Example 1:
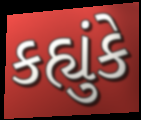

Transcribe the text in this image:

કહ્યુંકે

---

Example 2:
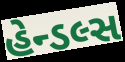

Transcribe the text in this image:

હેન્ડલ્સ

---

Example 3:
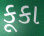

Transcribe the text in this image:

કૂકા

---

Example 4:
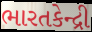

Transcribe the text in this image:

ભારતકેન્દ્રી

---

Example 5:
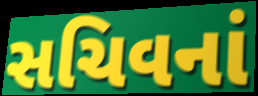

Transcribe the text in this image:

સચિવનાં